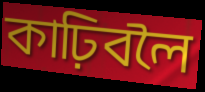
কাঢ়িবলৈ